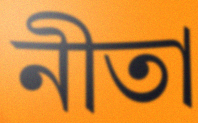
নীতা